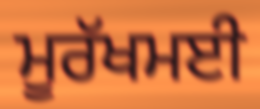
ਮੂਰੱਖਮਈ